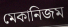
মেকানিজম